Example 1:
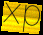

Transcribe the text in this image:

xp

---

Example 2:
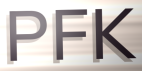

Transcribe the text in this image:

PFK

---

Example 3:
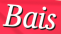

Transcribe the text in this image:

Bais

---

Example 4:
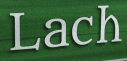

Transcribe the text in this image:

Lach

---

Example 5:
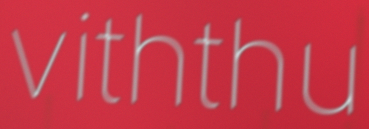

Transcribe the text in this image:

viththu